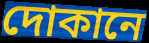
দোকানে